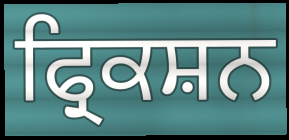
ਫ੍ਰਿਕਸ਼ਨ